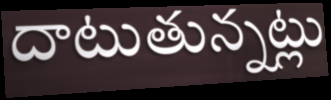
దాటుతున్నట్లు